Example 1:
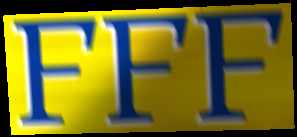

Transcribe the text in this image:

FFF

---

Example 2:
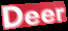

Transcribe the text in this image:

Deer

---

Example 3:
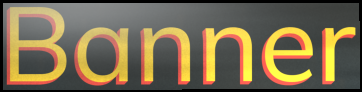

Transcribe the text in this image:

Banner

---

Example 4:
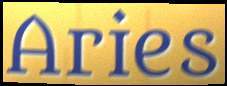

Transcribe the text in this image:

Aries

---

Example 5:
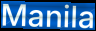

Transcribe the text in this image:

Manila